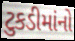
ટુકડીમાંનો